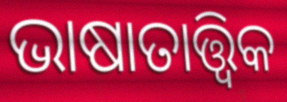
ଭାଷାତାତ୍ତ୍ୱିକ